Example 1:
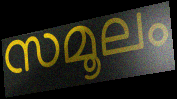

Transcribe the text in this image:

സമൂലം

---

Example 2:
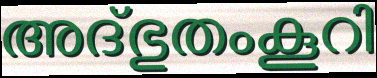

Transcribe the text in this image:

അദ്ഭുതംകൂറി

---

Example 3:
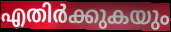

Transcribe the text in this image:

എതിർക്കുകയും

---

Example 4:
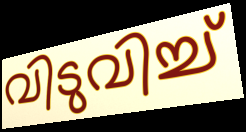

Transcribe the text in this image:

വിടുവിച്ച്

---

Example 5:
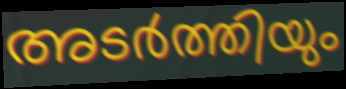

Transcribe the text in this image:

അടർത്തിയും